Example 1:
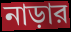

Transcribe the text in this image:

নাড়ার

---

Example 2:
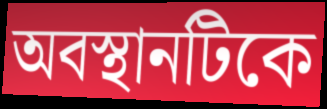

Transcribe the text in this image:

অবস্থানটিকে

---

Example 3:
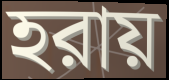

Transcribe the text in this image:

হরায়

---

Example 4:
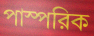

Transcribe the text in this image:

পাস্পরিক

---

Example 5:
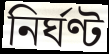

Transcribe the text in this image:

নির্ঘণ্ট